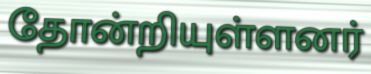
தோன்றியுள்ளனர்